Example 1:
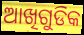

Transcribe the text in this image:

ଆଖିଗୁଡିକ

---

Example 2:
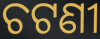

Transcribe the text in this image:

ଚଟଣୀ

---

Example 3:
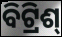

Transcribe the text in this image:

ବିଟ୍ରିଶ୍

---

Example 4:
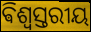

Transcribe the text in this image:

ଵିଶ୍ୱସ୍ତରୀୟ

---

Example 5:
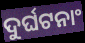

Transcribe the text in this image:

ଦୁର୍ଘଟନାଂ